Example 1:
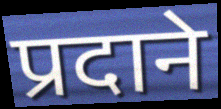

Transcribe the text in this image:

प्रदाने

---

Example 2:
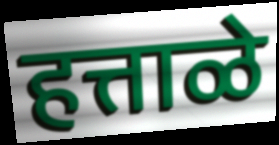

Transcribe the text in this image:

हत्ताळे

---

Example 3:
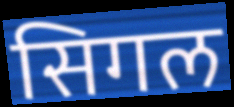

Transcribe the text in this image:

सिगल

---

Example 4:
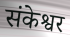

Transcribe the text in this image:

संकेश्वर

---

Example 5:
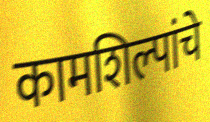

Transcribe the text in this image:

कामशिल्पांचे